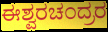
ಈಶ್ವರಚಂದ್ರರ